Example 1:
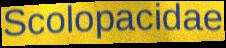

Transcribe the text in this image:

Scolopacidae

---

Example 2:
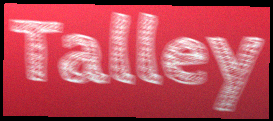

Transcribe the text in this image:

Talley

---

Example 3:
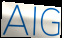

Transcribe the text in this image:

AIG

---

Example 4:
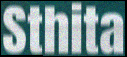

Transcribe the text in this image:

Sthita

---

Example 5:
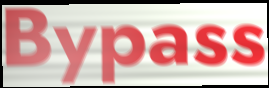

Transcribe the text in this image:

Bypass